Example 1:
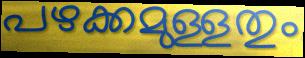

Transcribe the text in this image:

പഴക്കമുള്ളതും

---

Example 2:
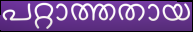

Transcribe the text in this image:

പറ്റാത്തതായ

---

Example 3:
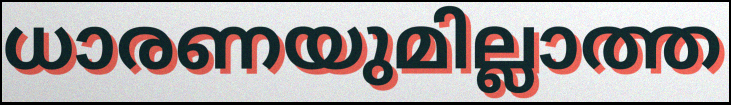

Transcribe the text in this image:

ധാരണയുമില്ലാത്ത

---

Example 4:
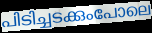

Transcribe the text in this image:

പിടിച്ചടക്കുംപോലെ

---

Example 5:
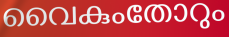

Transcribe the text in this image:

വൈകുംതോറും